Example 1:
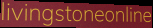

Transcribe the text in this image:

livingstoneonline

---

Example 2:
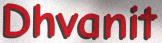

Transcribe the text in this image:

Dhvanit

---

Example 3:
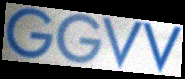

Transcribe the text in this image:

GGVV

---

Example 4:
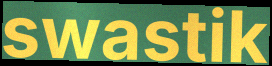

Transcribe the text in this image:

swastik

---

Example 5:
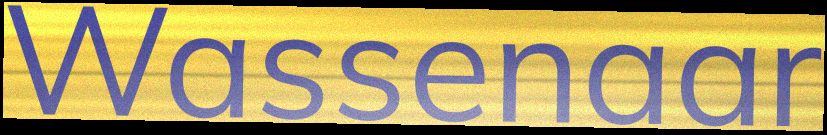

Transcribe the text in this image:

Wassenaar